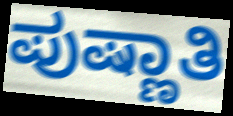
ಪುಷ್ಣಾತಿ